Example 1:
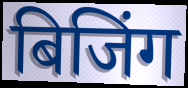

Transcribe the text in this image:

बिजिंग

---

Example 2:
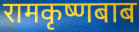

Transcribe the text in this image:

रामकृष्णबाब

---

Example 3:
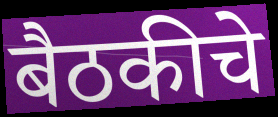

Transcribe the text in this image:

बैठकीचे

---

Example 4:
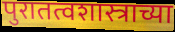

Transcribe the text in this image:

पुरातत्वशास्त्राच्या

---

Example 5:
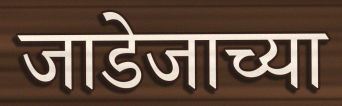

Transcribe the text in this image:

जाडेजाच्या